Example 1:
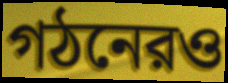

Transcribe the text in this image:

গঠনেরও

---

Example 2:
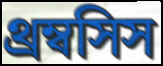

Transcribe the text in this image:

থ্রম্বসিস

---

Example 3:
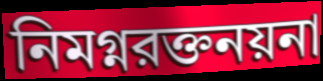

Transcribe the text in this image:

নিমগ্নরক্তনয়না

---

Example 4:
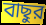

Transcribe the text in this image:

বাছুর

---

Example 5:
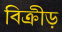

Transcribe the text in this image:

বিক্রীড়